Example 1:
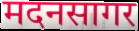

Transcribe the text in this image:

मदनसागर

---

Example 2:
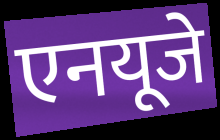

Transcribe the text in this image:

एनयूजे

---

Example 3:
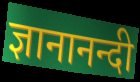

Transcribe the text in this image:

ज्ञानानन्दी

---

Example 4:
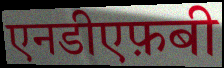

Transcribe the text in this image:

एनडीएफ़बी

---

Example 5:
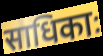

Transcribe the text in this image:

साधिकाः